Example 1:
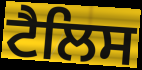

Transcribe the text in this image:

ਟੈਲਿਸ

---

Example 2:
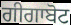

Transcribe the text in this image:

ਗੀਗਾਬੋਟ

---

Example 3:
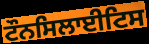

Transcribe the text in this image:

ਟੌਨਸਿਲਾਈਟਿਸ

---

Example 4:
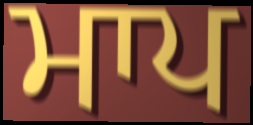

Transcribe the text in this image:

ਮਾਪ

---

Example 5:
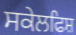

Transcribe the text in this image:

ਸਕੇਲਫਿਸ਼